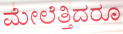
ಮೇಲೆತ್ತಿದರೂ